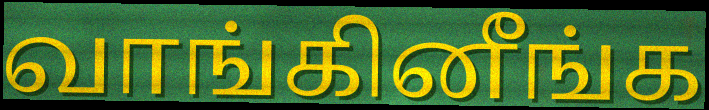
வாங்கினீங்க